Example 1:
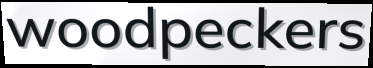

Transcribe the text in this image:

woodpeckers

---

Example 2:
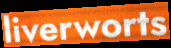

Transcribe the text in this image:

liverworts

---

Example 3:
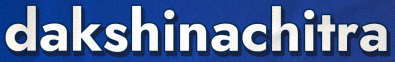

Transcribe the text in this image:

dakshinachitra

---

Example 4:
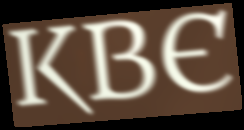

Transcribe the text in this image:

KBE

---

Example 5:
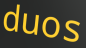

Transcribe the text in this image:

duos